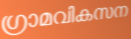
ഗ്രാമവികസന